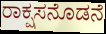
ರಾಕ್ಷಸನೊಡನೆ